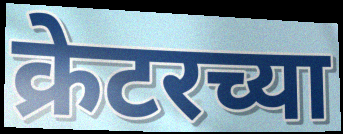
क्रेटरच्या